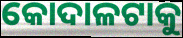
କୋଦାଳଟାକୁ